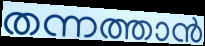
തന്നത്താൻ